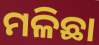
ମଳିଛା